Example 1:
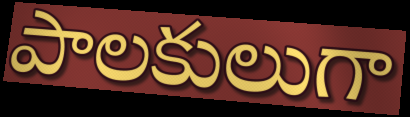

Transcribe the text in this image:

పాలకులుగా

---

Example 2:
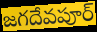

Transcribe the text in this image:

జగదేవపూర్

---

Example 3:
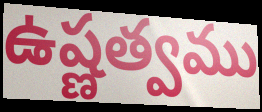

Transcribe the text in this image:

ఉష్ణత్వము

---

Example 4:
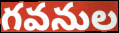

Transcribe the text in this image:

గవనుల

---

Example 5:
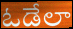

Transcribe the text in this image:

ఓడేలా